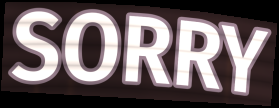
SORRY